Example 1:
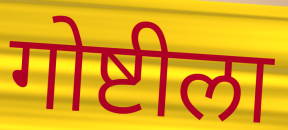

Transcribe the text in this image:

गोष्टीला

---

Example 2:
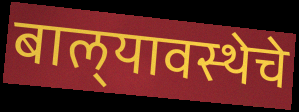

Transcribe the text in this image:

बाल्यावस्थेचे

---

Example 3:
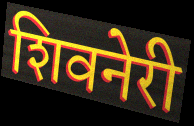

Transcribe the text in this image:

शिवनेरी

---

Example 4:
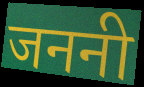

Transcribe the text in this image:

जननी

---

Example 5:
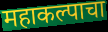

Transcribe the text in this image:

महाकल्पाचा